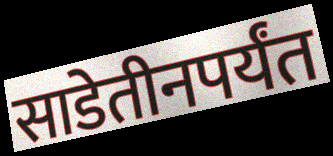
साडेतीनपर्यंत